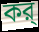
কর্